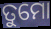
ତୁମୋ